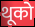
थूको